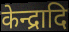
केन्द्रादि